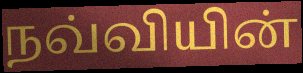
நவ்வியின்